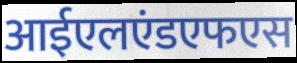
आईएलएंडएफएस